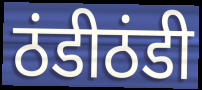
ठंडीठंडी